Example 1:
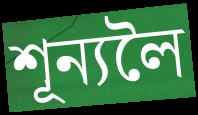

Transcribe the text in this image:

শূন্যলৈ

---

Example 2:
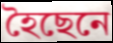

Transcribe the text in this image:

হৈছেনে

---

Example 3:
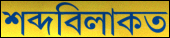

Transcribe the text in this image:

শব্দবিলাকত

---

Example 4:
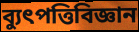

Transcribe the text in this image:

ব্যুৎপত্তিবিজ্ঞান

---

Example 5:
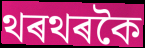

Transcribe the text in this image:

থৰথৰকৈ